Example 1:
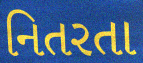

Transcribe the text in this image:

નિતરતા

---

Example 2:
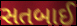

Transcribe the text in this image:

સતબાઈ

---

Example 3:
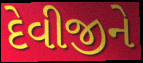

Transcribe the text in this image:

દેવીજીને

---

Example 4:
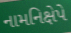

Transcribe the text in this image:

નામનિક્ષેપે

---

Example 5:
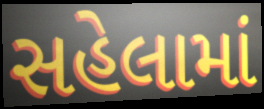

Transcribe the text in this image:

સહેલામાં